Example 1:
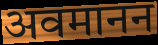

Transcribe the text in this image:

अवमानन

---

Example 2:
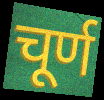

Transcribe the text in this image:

चूर्ण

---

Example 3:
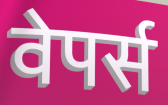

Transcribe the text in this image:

वेपर्स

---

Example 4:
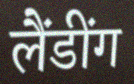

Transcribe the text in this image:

लैंडींग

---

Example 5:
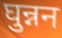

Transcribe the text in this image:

घुन्नन